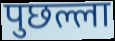
पुछल्ला